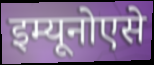
इम्यूनोएसे